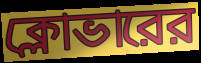
ক্লোভারের